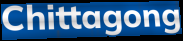
Chittagong